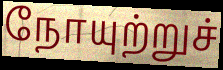
நோயுற்றுச்